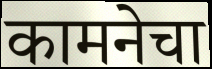
कामनेचा